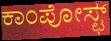
ಕಾಂಪೋಸ್ಟ್